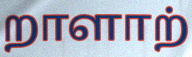
றாளாற்